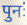
पुनः॑